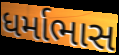
ધર્માભાસ